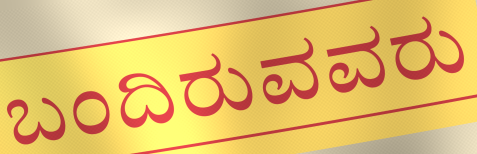
ಬಂದಿರುವವರು